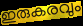
ഇരുകരവും